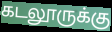
கடலூருக்கு